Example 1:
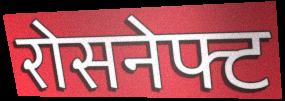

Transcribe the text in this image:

रोसनेफ्ट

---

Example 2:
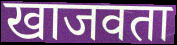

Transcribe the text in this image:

खाजवता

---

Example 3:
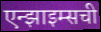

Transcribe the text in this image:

एन्झाइम्सची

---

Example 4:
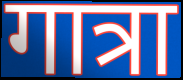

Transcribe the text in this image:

गात्रा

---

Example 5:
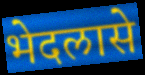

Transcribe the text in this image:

भेदलासे